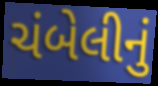
ચંબેલીનું